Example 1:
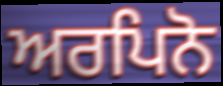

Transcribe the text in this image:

ਅਰਪਿਨੋ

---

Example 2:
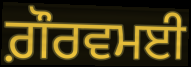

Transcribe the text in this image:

ਗ਼ੌਰਵਮਈ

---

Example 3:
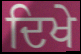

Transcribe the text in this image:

ਦਿਖੇ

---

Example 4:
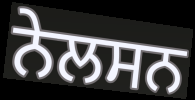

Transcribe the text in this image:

ਨੇਲਸਨ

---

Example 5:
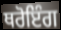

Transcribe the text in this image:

ਥਰੋਇੰਗ